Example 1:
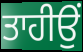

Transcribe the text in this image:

ਤਾਹੀਉਂ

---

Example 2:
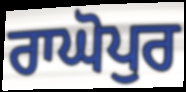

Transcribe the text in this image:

ਰਾਘੋਪੁਰ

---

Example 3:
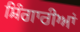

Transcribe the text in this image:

ਸ਼ਿੰਗਾਰੀਆਂ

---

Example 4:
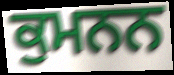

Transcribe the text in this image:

ਕੁਮਨਨ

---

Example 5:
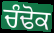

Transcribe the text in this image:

ਚੰਢੋਕ